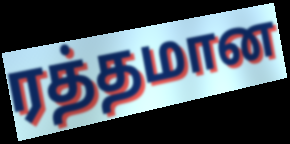
ரத்தமான